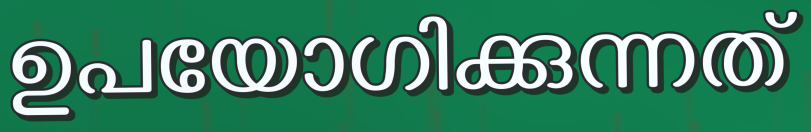
ഉപയോഗിക്കുന്നത്